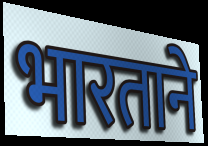
भारताने